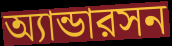
অ্যান্ডারসন